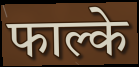
फाल्के